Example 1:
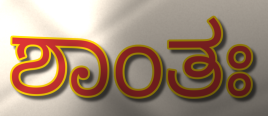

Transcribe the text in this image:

ಶಾಂತಃ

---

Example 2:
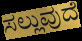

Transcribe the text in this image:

ಸಲ್ಲುವುದೆ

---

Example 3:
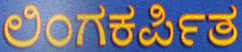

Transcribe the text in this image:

ಲಿಂಗಕರ್ಪಿತ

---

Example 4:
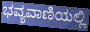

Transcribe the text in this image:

ಭವ್ಯವಾಣಿಯಲ್ಲಿ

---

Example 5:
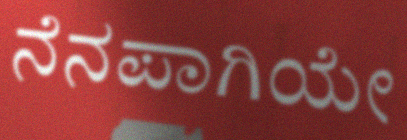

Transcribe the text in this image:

ನೆನಪಾಗಿಯೇ